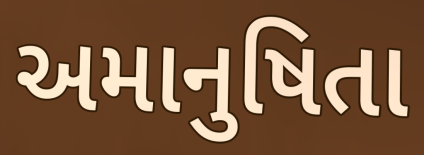
અમાનુષિતા